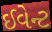
ઈવેન્ટ